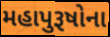
મહાપુરૂષોના